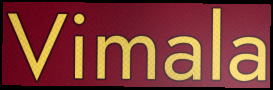
Vimala